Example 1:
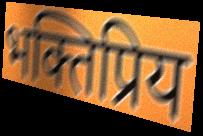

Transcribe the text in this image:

भक्तिप्रिय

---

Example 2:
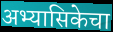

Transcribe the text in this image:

अभ्यासिकेचा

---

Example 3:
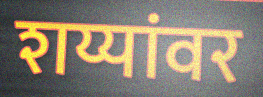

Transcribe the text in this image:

शय्यांवर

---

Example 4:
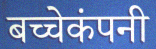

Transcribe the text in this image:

बच्चेकंपनी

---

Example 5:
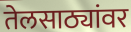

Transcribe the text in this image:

तेलसाठ्यांवर